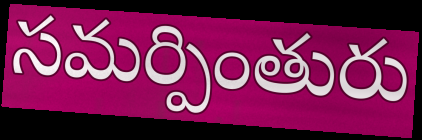
సమర్పింతురు